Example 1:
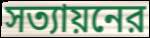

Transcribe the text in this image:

সত্যায়নের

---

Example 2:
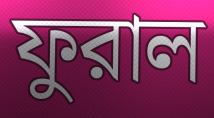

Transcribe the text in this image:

ফুরাল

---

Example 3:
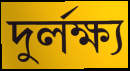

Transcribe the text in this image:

দুর্লক্ষ্য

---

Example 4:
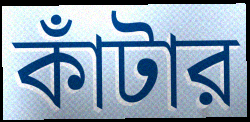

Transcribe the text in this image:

কাঁটার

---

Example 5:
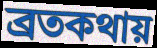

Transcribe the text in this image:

ব্রতকথায়